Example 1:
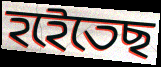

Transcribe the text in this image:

হইেতেছ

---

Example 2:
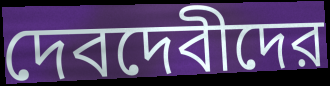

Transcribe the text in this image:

দেবদেবীদের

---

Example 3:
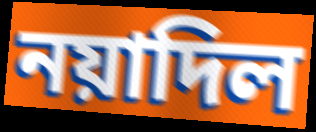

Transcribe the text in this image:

নয়াদিল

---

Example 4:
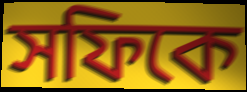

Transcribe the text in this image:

সফিকে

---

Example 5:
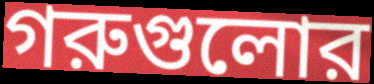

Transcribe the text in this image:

গরুগুলোর